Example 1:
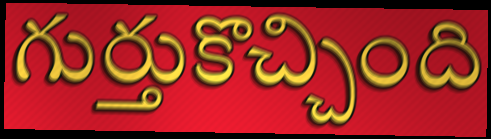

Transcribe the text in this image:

గుర్తుకొచ్చింది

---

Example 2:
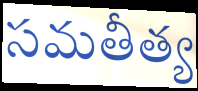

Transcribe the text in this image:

సమతీత్య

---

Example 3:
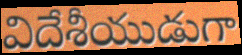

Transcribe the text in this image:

విదేశీయుడుగా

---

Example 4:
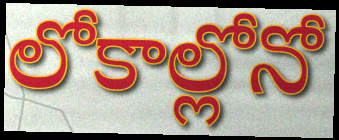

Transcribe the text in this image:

లోకాల్లోనో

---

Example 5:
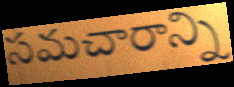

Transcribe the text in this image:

సమచారాన్ని